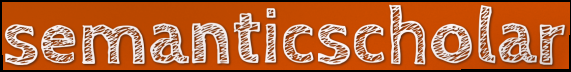
semanticscholar